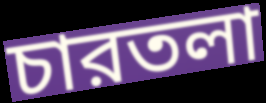
চারতলা